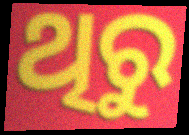
ଥିରୁ